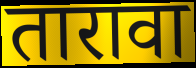
तारावा